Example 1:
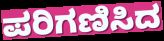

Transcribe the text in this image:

ಪರಿಗಣಿಸಿದ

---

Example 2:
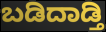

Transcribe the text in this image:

ಬಡಿದಾಡ್ತಿ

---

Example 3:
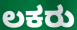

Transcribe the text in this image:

ಲಕರು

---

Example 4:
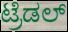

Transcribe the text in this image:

ಟ್ರೆಡಲ್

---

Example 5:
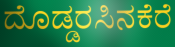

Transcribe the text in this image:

ದೊಡ್ಡರಸಿನಕೆರೆ